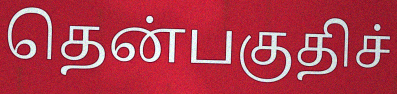
தென்பகுதிச்